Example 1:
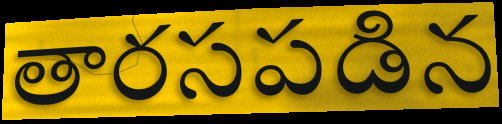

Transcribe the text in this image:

తారసపడిన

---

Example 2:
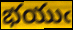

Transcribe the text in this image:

భయుఁ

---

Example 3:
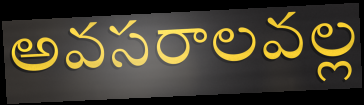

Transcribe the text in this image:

అవసరాలవల్ల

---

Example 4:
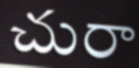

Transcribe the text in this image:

చురా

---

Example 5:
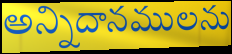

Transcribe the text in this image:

అన్నిదానములను